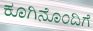
ಕೂಗಿನೊಂದಿಗೆ